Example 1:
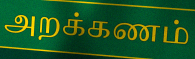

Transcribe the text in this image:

அறக்கணம்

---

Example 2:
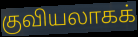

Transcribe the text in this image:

குவியலாகக்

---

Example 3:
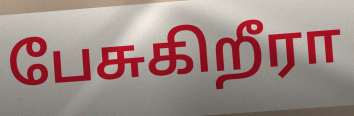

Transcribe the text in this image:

பேசுகிறீரா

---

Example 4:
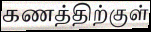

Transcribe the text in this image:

கணத்திற்குள்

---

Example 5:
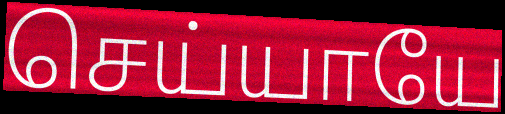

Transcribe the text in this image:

செய்யாயே